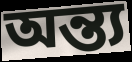
অন্ত্য